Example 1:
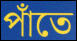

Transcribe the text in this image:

পাঁতে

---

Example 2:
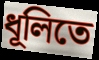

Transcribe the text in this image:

ধূলিতে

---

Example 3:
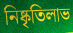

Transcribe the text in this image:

নিষ্কৃতিলাভ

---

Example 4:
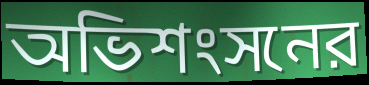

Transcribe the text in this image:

অভিশংসনের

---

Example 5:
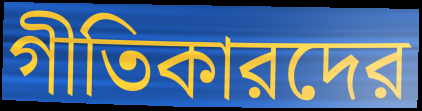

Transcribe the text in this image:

গীতিকারদের